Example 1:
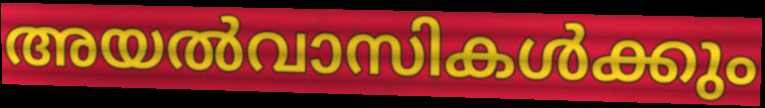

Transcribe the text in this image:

അയൽവാസികൾക്കും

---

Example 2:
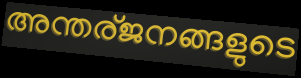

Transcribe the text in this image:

അന്തര്ജനങ്ങളുടെ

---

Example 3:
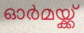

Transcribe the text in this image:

ഓർമയ്ക്ക്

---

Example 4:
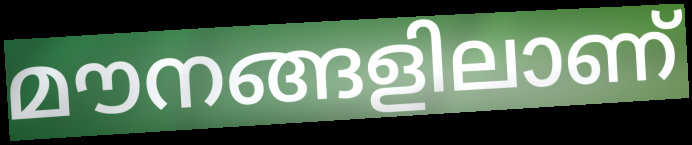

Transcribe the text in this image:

മൗനങ്ങളിലാണ്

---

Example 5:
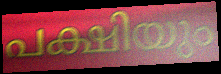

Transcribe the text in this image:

പക്ഷിയും